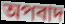
অপবাদ